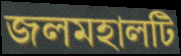
জলমহালটি